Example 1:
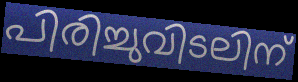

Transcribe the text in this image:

പിരിച്ചുവിടലിന്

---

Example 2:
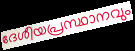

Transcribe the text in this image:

ദേശീയപ്രസ്ഥാനവും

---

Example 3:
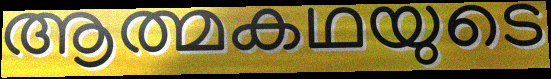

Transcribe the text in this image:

ആത്മകഥയുടെ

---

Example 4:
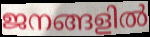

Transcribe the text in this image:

ജനങ്ങളിൽ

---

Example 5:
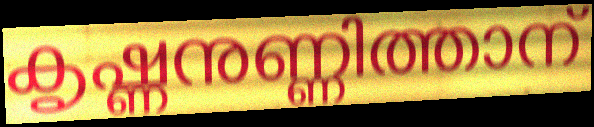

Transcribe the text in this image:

കൃഷ്ണനുണ്ണിത്താന്